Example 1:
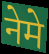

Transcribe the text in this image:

नेमे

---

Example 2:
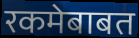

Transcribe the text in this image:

रकमेबाबत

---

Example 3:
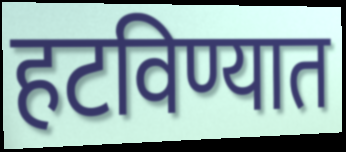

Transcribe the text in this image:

हटविण्यात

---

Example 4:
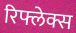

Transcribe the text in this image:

रिफ्लेक्स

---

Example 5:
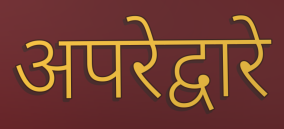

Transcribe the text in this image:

अपरेद्वारे